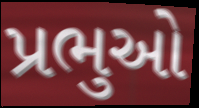
પ્રભુઓ